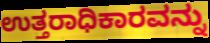
ಉತ್ತರಾಧಿಕಾರವನ್ನು